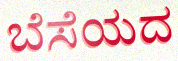
ಬೆಸೆಯದ